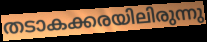
തടാകക്കരയിലിരുന്നു